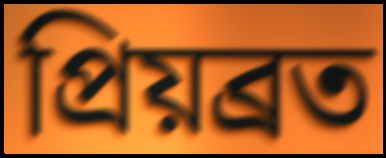
প্ৰিয়ব্ৰত